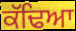
ਕੱਢਿਆ